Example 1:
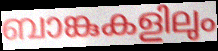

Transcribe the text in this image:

ബാങ്കുകളിലും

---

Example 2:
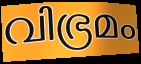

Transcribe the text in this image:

വിഭ്രമം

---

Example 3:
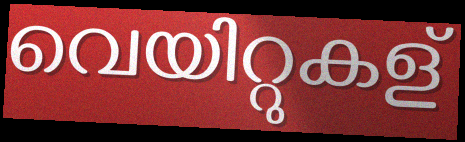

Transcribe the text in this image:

വെയിറ്റുകള്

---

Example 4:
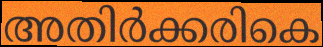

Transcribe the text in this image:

അതിർക്കരികെ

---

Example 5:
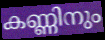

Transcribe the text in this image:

കണ്ണിനും